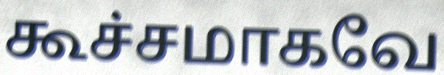
கூச்சமாகவே